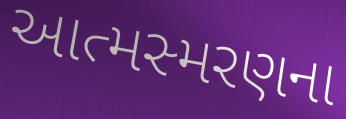
આત્મસ્મરણના